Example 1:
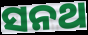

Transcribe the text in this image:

ସନଥ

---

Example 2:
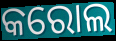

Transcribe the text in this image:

କରୋଲ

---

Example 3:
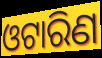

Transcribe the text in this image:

ଓଟାରିଣ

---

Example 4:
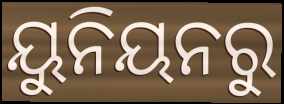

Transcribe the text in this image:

ୟୁନିୟନରୁ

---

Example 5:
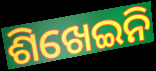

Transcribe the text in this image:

ଶିଖେଇନି